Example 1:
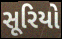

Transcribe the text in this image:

સૂરિયો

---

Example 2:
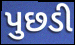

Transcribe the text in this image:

પુછડી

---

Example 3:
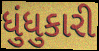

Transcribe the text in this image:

ધુંધુકારી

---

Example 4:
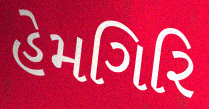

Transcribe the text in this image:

હેમગિરિ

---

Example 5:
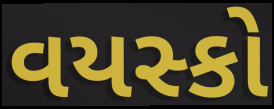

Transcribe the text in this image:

વયસ્કો